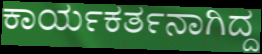
ಕಾರ್ಯಕರ್ತನಾಗಿದ್ದ